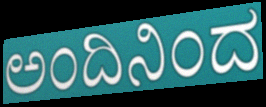
ಅಂದಿನಿಂದ